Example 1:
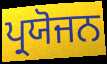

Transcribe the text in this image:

ਪ੍ਰਯੋਜਨ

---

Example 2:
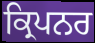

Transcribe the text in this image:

ਕ੍ਰਿਪਨਰ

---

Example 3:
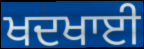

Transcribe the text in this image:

ਖਦਖਾਈ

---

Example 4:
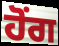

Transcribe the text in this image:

ਹੋਂਗ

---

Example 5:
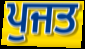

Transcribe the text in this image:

ਪੁਜਤ